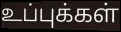
உப்புக்கள்